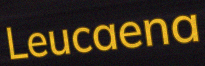
Leucaena